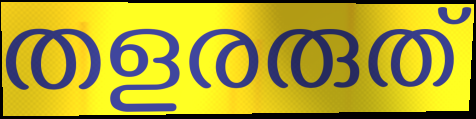
തളരരുത്